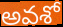
అవశో